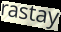
rastay